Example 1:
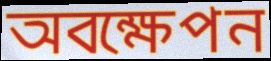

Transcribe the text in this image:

অবক্ষেপন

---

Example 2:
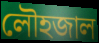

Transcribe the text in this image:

লৌহজাল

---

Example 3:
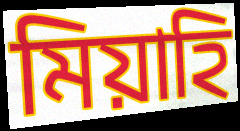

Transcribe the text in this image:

মিয়াহি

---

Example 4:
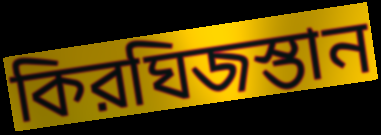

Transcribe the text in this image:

কিরঘিজস্তান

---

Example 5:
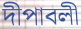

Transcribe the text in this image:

দীপাবলী